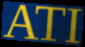
ATI